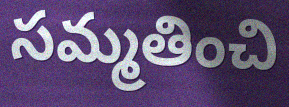
సమ్మతించి